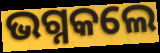
ଭଗ୍ନକଲେ